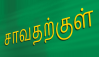
சாவதற்குள்